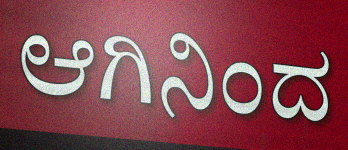
ಆಗಿನಿಂದ